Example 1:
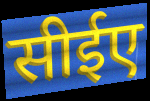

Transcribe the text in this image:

सीईए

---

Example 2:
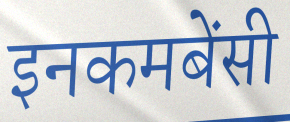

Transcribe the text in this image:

इनकमबेंसी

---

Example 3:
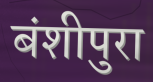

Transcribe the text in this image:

बंशीपुरा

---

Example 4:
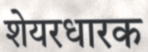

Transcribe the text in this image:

शेयरधारक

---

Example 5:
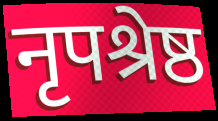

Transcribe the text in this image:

नृपश्रेष्ठ